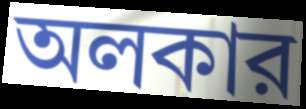
অলকার